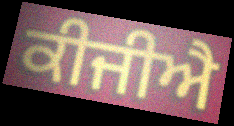
ਕੀਜੀਐ